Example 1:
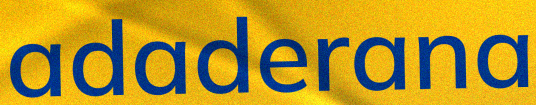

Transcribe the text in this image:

adaderana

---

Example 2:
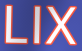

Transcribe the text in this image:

LIX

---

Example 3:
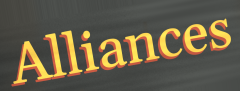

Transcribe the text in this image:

Alliances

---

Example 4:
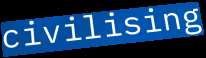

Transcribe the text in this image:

civilising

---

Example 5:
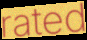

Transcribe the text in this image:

rated